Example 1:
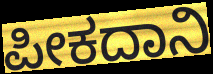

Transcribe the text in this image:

ಪೀಕದಾನಿ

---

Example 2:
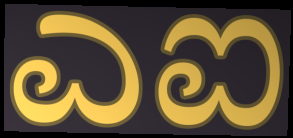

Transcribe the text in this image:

ಎಐ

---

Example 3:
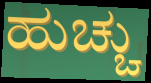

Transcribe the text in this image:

ಹುಚ್ಚು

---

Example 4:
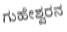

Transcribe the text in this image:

ಗುಹೇಶ್ವರನ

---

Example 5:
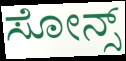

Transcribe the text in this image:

ಸೋನ್ಸ್